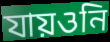
যায়ওনি